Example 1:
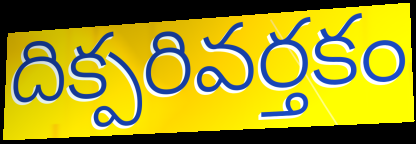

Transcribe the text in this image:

దిక్పరివర్తకం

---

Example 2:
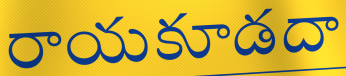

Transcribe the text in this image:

రాయకూడదా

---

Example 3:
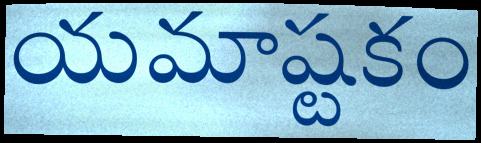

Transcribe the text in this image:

యమాష్టకం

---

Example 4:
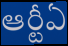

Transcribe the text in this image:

ఆర్టీఏ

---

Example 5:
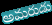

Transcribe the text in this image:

అమరుడు